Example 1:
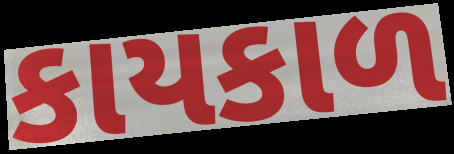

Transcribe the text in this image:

કાયકાળ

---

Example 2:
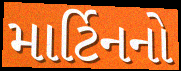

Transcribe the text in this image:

માર્ટિનનો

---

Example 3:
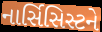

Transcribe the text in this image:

નાર્સિસિસ્ટને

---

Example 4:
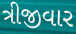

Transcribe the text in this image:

ત્રીજીવાર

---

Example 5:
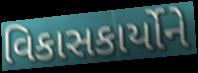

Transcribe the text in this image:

વિકાસકાર્યોને